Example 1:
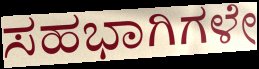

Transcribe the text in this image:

ಸಹಭಾಗಿಗಳೇ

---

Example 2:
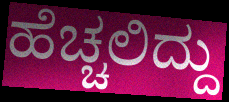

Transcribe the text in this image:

ಹೆಚ್ಚಲಿದ್ದು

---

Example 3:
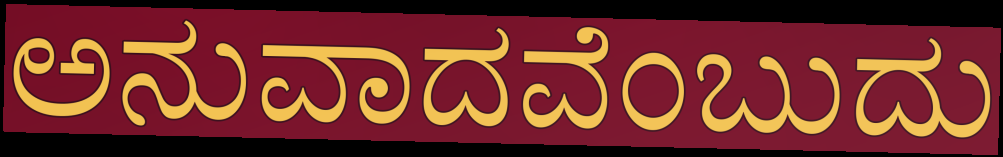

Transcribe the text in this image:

ಅನುವಾದವೆಂಬುದು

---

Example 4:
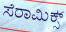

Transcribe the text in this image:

ಸೆರಾಮಿಕ್ಸ್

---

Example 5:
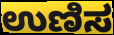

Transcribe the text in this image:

ಉಣಿಸ